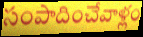
సంపాదించేవాళ్లం